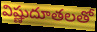
విష్ణుదూతలతో